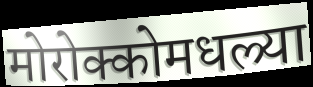
मोरोक्कोमधल्या